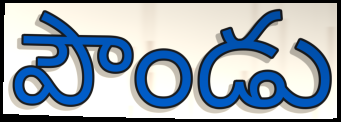
పౌండు